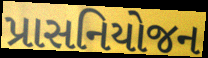
પ્રાસનિયોજન